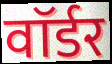
वॉर्डर